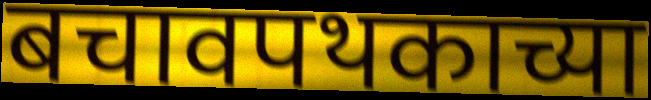
बचावपथकाच्या